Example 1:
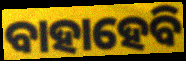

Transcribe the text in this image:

ବାହାହେବି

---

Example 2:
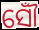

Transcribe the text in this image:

ସୌଁ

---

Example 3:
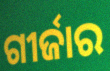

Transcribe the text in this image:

ଗୀର୍ଜାର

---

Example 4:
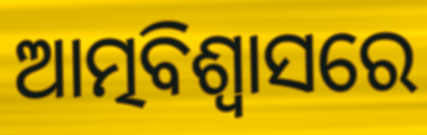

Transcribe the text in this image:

ଆତ୍ମବିଶ୍ଵାସରେ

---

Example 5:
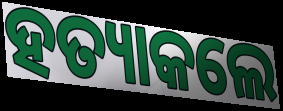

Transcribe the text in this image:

ହତ୍ୟାକଲେ